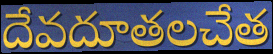
దేవదూతలచేత